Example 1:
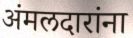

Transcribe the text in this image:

अंमलदारांना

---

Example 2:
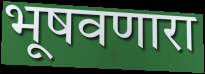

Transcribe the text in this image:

भूषवणारा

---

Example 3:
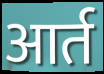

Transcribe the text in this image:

आर्त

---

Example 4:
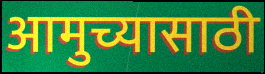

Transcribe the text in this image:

आमुच्यासाठी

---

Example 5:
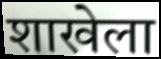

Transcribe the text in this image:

शाखेला